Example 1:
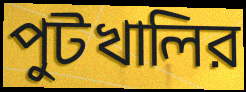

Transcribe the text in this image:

পুটখালির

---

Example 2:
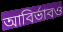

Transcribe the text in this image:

আবির্ভাবও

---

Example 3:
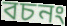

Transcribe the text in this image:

বচনং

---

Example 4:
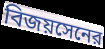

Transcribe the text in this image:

বিজয়সেনের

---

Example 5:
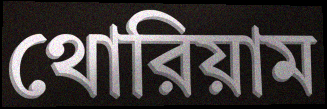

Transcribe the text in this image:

থোরিয়াম